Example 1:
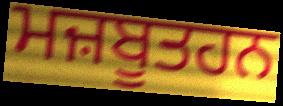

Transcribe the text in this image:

ਮਜ਼ਬੂਤਹਨ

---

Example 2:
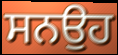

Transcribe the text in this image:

ਸਨਉਹ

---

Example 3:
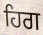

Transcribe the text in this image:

ਹਿਗ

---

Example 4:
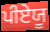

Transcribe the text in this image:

ਪੀਏਯੂ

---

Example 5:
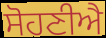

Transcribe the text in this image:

ਸੋਹਣੀਐ